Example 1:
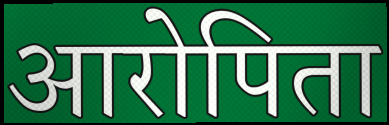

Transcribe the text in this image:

आरोपिता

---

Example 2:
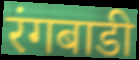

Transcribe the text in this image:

रंगबाडी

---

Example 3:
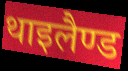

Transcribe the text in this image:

थाइलैण्ड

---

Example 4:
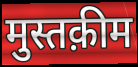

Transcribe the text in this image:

मुस्तक़ीम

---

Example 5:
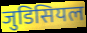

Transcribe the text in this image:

जुडिसियल